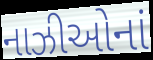
નાઝીઓનાં